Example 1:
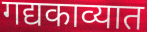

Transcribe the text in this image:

गद्यकाव्यात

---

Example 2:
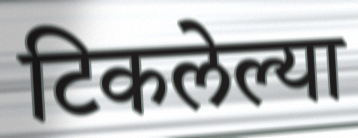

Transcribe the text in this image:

टिकलेल्या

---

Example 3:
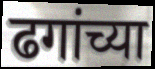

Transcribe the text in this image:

ढगांच्या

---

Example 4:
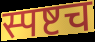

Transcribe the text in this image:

स्पष्टच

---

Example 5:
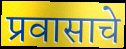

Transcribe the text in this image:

प्रवासाचे